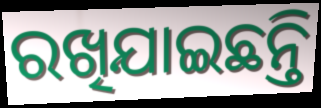
ରଖିଯାଇଛନ୍ତି